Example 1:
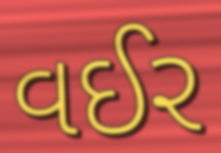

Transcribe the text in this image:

વઈર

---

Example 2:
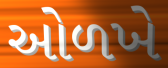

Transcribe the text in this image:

ઓળખે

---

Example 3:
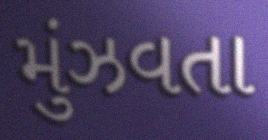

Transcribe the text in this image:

મુંઝવતા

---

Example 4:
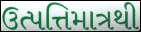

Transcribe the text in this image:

ઉત્પત્તિમાત્રથી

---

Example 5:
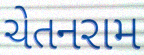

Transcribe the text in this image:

ચેતનરામ